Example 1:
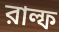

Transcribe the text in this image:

রাল্ফ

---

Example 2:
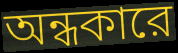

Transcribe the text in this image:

অন্ধকারে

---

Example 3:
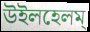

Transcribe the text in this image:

উইলহেলম্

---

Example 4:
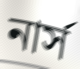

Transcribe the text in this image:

নার্স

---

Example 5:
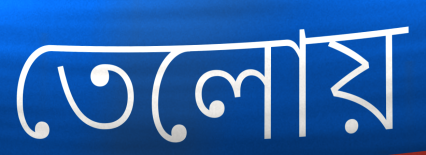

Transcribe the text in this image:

তেলোয়